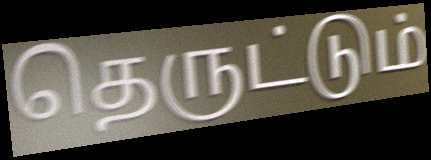
தெருட்டும்